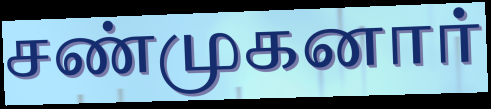
சண்முகனார்